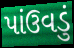
પાંઉવડું